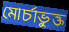
মোর্চাভুক্ত